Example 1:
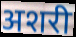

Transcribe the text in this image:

अशरी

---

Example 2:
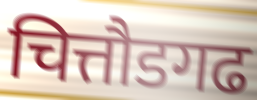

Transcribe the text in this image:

चित्तौडगढ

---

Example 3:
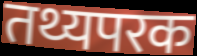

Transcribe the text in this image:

तथ्यपरक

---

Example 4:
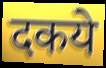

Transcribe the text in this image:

दकये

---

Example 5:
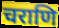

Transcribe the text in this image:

चराणि